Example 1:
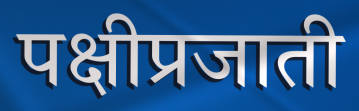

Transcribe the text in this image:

पक्षीप्रजाती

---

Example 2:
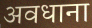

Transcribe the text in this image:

अवधाना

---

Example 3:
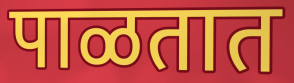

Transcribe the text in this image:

पाळतात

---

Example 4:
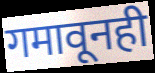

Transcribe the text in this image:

गमावूनही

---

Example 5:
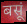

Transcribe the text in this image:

बसूं